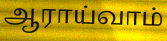
ஆராய்வாம்